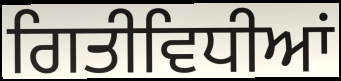
ਗਿਤੀਵਿਧੀਆਂ